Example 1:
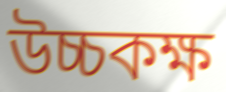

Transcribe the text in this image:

উচ্চকক্ষ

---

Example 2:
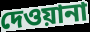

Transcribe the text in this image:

দেওয়ানা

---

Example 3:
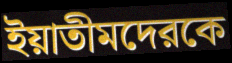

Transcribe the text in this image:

ইয়াতীমদেরকে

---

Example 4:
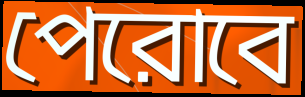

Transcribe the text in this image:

পেরোবে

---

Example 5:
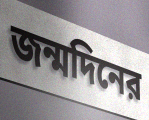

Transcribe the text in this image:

জন্মদিনের